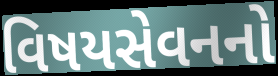
વિષયસેવનનો